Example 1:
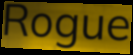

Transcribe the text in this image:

Rogue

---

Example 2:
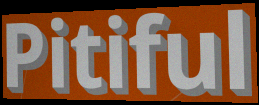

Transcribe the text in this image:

Pitiful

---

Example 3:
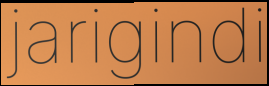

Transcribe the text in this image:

jarigindi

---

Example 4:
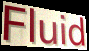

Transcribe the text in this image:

Fluid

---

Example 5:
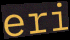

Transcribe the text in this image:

eri